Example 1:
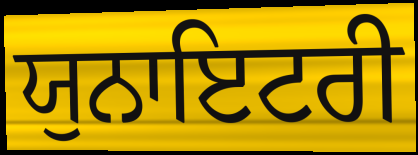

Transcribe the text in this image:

ਯੁਨਾਇਟਰੀ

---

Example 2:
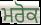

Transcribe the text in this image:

ਮਰੋਕ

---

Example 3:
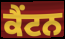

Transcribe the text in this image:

ਕੈਂਟਨ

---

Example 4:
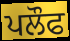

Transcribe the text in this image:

ਪਲੌਫ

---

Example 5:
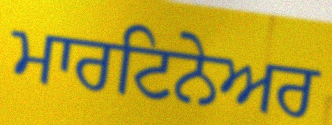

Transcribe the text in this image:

ਮਾਰਟਿਨੇਅਰ